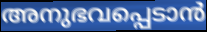
അനുഭവപ്പെടാൻ